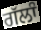
ਗੱਲਾੰ